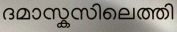
ദമാസ്കസിലെത്തി